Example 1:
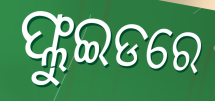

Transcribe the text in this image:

ଫ୍ଲୁଇଡରେ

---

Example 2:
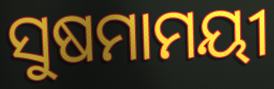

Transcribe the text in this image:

ସୁଷମାମୟୀ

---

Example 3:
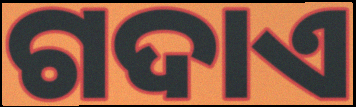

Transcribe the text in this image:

ଗଦାଏ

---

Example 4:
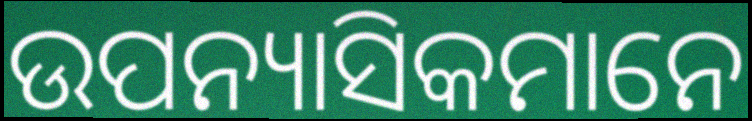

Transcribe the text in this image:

ଉପନ୍ୟାସିକମାନେ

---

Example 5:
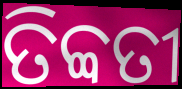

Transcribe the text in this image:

ତିବ୍ବତୀ